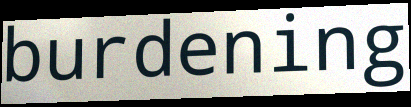
burdening